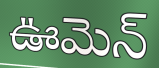
ఊమెన్